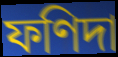
ফণিদা